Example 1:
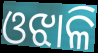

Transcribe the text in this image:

ଓଝାଳି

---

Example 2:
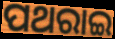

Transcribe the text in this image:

ପଥରାଇ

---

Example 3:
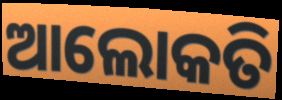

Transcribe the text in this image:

ଆଲୋକତି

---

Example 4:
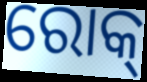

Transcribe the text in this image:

ରୋକ୍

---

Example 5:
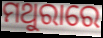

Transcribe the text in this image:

ମଥୁରାରେ